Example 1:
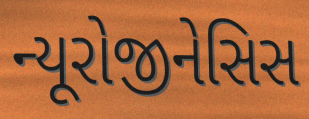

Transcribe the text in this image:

ન્યૂરોજીનેસિસ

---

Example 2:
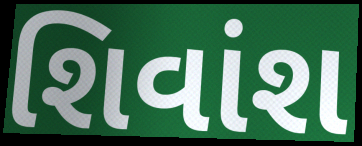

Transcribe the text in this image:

શિવાંશ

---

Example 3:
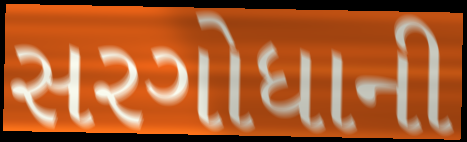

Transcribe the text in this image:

સરગોધાની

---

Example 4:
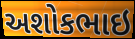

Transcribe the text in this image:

અશોકભાઇ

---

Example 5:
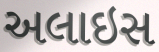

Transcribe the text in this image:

અલાઇસ